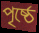
পৃষ্ঠে